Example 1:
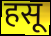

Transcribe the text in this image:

हसू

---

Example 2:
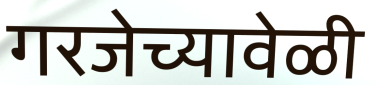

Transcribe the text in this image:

गरजेच्यावेळी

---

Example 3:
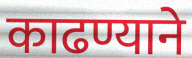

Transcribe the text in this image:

काढण्याने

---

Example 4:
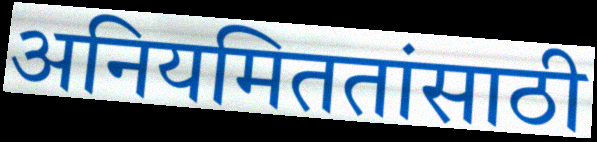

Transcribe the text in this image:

अनियमिततांसाठी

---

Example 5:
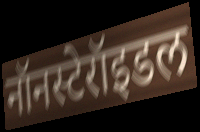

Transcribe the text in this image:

नॉनस्टेरॉइडल